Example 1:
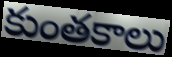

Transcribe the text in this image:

కుంతకాలు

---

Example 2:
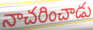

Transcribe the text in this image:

నాచరించాడు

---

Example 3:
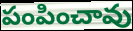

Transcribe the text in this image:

పంపించావు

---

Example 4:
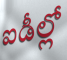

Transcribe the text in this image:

ఐడీల్లో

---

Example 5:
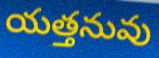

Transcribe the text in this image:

యత్తనువు